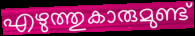
എഴുത്തുകാരുമുണ്ട്